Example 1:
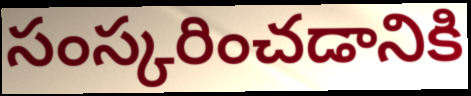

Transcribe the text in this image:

సంస్కరించడానికి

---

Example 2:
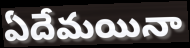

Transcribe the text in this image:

ఏదేమయినా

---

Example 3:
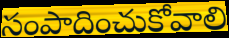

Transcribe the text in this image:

సంపాదించుకోవాలి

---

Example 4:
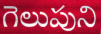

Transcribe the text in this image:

గెలుపుని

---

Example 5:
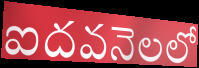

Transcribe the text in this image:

ఐదవనెలలో